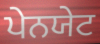
ਪੇਨਯੇਟ